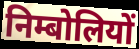
निम्बोलियों